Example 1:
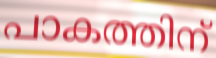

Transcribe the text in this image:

പാകത്തിന്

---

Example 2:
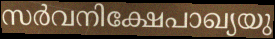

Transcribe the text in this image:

സർവനിക്ഷേപാഖ്യയു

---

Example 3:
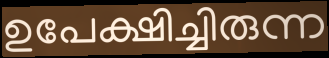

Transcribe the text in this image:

ഉപേക്ഷിച്ചിരുന്ന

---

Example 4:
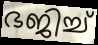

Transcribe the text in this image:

ഭജിച്ച്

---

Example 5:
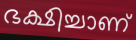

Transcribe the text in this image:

ഭക്ഷിച്ചാണ്